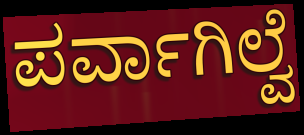
ಪರ್ವಾಗಿಲ್ವೆ